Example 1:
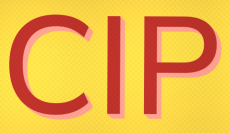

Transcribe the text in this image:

CIP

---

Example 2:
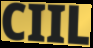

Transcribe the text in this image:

CIIL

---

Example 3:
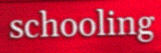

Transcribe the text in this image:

schooling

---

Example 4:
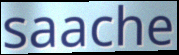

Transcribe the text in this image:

saache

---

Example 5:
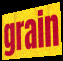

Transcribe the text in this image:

grain